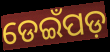
ଡେଇଁପଡ଼